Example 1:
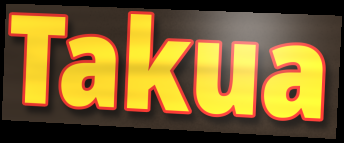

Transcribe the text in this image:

Takua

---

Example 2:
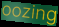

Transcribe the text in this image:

oozing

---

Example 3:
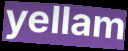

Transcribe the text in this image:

yellam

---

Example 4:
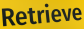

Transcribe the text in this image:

Retrieve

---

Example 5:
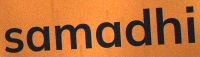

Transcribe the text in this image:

samadhi